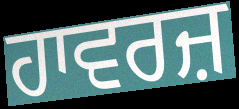
ਹਾਵਰਜ਼